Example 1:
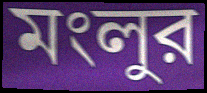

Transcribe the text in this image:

মংলুর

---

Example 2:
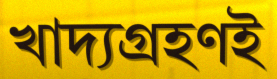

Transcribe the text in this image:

খাদ্যগ্রহণই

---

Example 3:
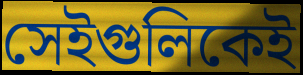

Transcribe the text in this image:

সেইগুলিকেই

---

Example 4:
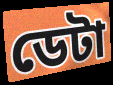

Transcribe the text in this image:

ডেটা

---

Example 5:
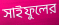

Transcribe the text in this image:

সাইফুলের